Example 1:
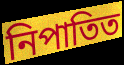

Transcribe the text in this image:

নিপাতিত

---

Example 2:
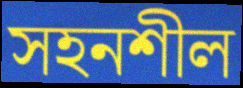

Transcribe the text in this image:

সহনশীল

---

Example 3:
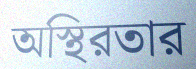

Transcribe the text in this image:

অস্থিরতার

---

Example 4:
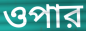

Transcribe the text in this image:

ওপার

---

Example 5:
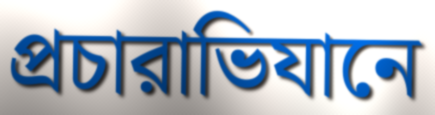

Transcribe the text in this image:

প্রচারাভিযানে